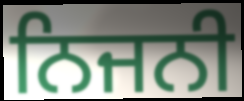
ਨਿਜਨੀ